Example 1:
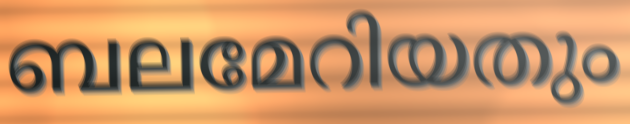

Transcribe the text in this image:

ബലമേറിയതും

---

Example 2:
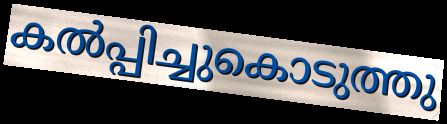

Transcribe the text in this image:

കൽപ്പിച്ചുകൊടുത്തു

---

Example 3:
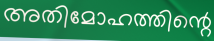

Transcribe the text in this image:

അതിമോഹത്തിന്റെ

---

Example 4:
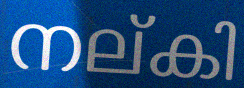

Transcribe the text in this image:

നല്‌കി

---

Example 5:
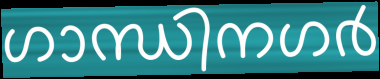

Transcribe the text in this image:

ഗാന്ധിനഗർ